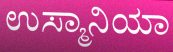
ಉಸ್ಮಾನಿಯಾ